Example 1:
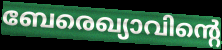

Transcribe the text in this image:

ബേരെഖ്യാവിന്റെ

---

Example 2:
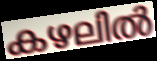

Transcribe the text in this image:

കഴലിൽ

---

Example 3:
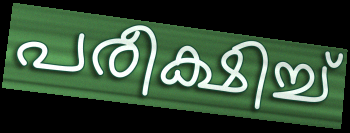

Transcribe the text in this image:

പരീക്ഷിച്ച്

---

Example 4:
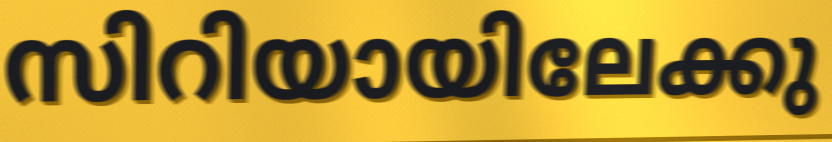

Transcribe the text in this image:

സിറിയായിലേക്കു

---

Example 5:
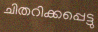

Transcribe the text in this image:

ചിതറിക്കപ്പെട്ടു